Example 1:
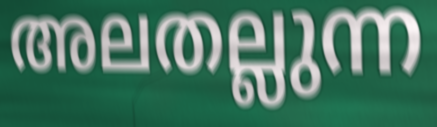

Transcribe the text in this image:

അലതല്ലുന്ന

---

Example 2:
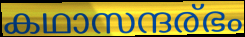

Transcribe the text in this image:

കഥാസന്ദര്ഭം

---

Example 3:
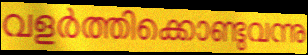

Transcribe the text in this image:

വളർത്തിക്കൊണ്ടുവന്നു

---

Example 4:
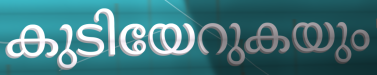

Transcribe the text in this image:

കുടിയേറുകയും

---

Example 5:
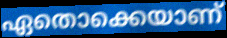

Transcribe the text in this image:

ഏതൊക്കെയാണ്